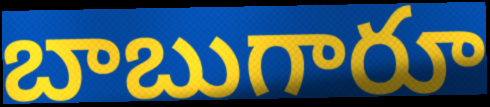
బాబుగారూ